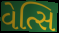
વેત્સિ